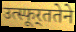
उत्स्फूर्ततेने